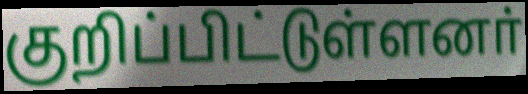
குறிப்பிட்டுள்ளனர்